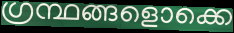
ഗ്രന്ഥങ്ങളൊക്കെ